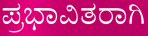
ಪ್ರಭಾವಿತರಾಗಿ